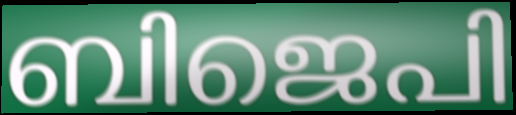
ബിജെപി